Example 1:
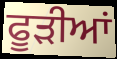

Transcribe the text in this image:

ਫੂੜੀਆਂ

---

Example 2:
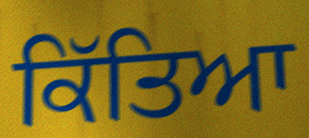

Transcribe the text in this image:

ਕਿੱਤਿਆ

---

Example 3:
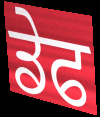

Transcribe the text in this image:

ਡੇਫ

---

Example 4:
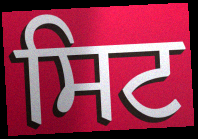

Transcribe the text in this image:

ਸਿਟ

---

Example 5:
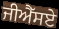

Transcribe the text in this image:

ਜੀਐੱਸਏ